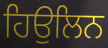
ਹਿਉਲਿਨ